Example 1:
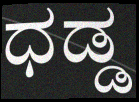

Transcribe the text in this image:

ಧಡ್ಡ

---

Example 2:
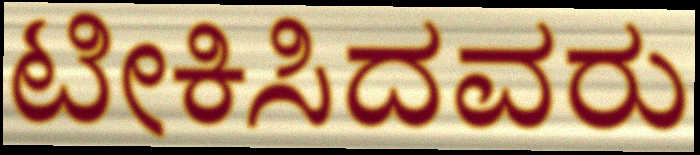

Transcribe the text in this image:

ಟೀಕಿಸಿದವರು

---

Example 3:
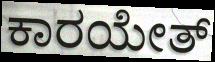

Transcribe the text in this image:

ಕಾರಯೇತ್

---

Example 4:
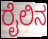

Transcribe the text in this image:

ರೈಲಿನ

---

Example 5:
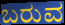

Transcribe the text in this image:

ಬರುವ